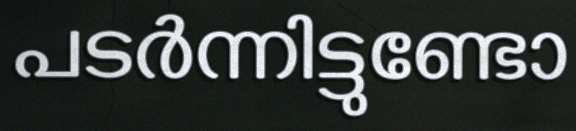
പടർന്നിട്ടുണ്ടോ